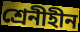
শ্রেনীহীন